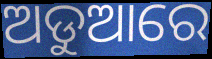
ଅଡୁଆରେ